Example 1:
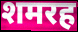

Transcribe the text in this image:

शमरह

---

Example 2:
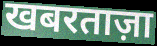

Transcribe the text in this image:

खबरताज़ा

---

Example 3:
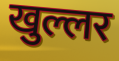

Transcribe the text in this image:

खुल्लर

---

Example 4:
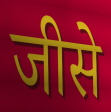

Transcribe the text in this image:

जीसे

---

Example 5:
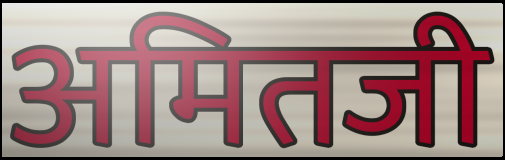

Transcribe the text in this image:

अमितजी